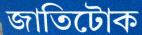
জাতিটোক